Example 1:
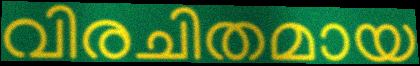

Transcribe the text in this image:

വിരചിതമായ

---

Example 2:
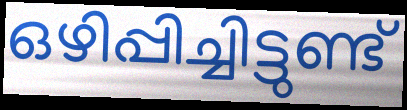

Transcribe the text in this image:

ഒഴിപ്പിച്ചിട്ടുണ്ട്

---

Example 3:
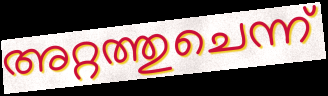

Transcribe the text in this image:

അറ്റത്തുചെന്ന്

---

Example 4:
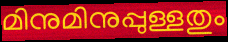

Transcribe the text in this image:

മിനുമിനുപ്പുള്ളതും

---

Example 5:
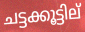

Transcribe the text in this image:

ചട്ടക്കൂട്ടില്